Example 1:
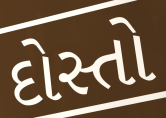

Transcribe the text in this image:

દોસ્તો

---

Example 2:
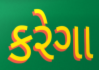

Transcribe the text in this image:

કરેગા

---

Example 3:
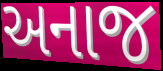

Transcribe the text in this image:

અનાજ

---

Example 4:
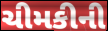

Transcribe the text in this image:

ચીમકીની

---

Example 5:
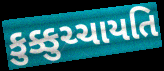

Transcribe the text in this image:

કુક્કુચ્ચાયતિ